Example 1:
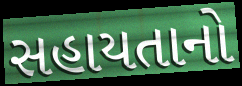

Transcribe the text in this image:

સહાયતાનો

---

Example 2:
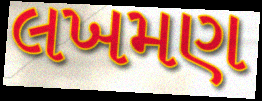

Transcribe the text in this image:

લખમણ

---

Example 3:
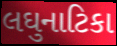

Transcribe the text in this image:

લઘુનાટિકા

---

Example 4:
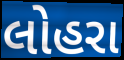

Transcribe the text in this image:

લોહરા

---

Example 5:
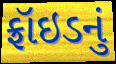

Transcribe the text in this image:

ફ્રૉઇડનું